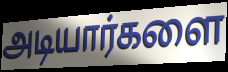
அடியார்களை